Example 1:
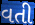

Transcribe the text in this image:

વતી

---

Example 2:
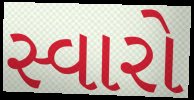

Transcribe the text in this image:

સ્વારો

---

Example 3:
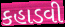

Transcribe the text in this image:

કહાડવી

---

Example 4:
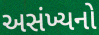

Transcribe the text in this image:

અસંખ્યનો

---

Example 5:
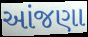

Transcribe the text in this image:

આંજણા